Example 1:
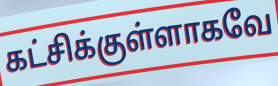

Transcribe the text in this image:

கட்சிக்குள்ளாகவே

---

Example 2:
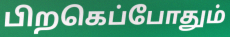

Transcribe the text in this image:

பிறகெப்போதும்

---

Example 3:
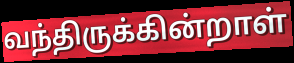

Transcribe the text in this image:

வந்திருக்கின்றாள்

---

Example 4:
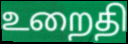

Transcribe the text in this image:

உறைதி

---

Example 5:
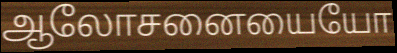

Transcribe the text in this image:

ஆலோசனையையோ